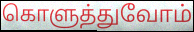
கொளுத்துவோம்